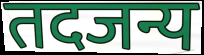
तदजन्य